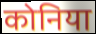
कोनिया